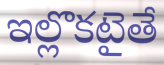
ఇల్లొకటైతే